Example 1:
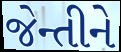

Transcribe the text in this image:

જેન્તીને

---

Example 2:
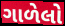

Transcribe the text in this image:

ગાળેલો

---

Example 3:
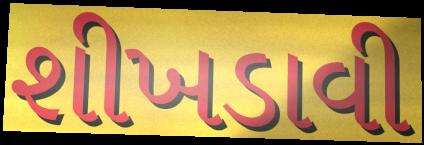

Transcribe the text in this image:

શીખડાવી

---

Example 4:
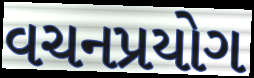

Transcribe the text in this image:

વચનપ્રયોગ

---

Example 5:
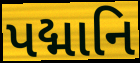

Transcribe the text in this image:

પદ્માનિ